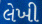
લેખી